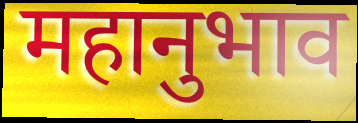
महानुभाव